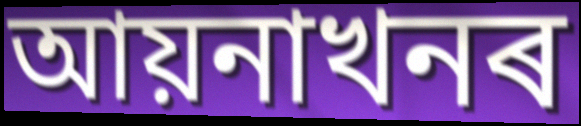
আয়নাখনৰ